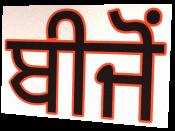
ਬੀਜੋਂ